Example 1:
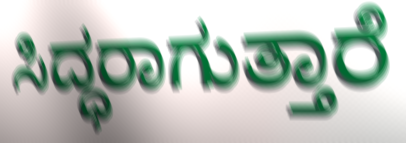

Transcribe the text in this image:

ಸಿದ್ಧರಾಗುತ್ತಾರೆ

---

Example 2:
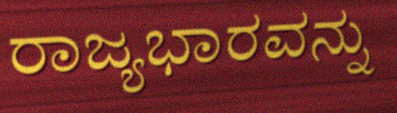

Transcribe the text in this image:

ರಾಜ್ಯಭಾರವನ್ನು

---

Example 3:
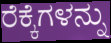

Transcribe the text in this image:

ರೆಕ್ಕೆಗಳನ್ನು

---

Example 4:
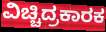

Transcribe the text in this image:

ವಿಚ್ಚಿದ್ರಕಾರಕ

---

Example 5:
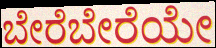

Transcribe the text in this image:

ಬೇರೆಬೇರೆಯೇ